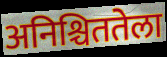
अनिश्चिततेला